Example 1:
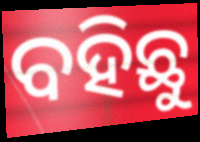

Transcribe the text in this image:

ବହିଛୁ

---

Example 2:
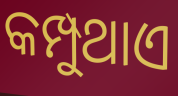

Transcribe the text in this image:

କମ୍ପୁଥାଏ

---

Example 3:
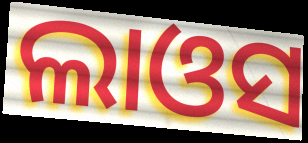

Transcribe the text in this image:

ଲାଓସ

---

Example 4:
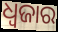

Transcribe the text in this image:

ଧ୍ୱଜାର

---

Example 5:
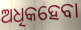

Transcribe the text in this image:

ଅଧିକହେବା